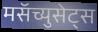
मसॅच्युसेट्स